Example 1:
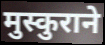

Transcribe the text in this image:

मुस्कुराने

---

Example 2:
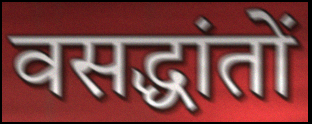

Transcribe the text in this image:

वसद्धांतों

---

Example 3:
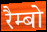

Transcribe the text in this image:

रैम्बो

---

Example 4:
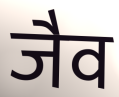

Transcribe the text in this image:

जैव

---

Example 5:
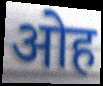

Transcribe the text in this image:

ओह